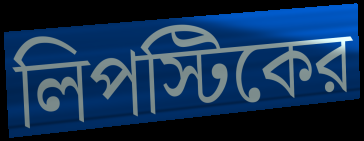
লিপস্টিকের